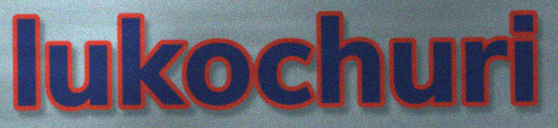
lukochuri